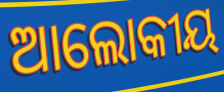
ଆଲୋକୀୟ